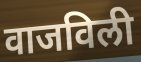
वाजविली